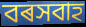
বৰসবাহ